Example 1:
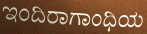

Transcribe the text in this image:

ಇಂದಿರಾಗಾಂಧಿಯ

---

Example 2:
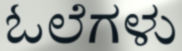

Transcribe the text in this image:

ಓಲೆಗಳು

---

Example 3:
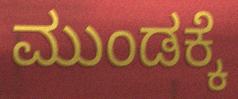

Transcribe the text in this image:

ಮುಂಡಕ್ಕೆ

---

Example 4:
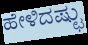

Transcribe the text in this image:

ಹೇಳಿದಷ್ಟು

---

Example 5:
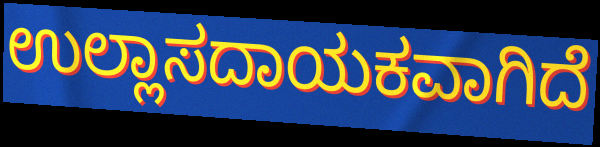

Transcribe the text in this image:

ಉಲ್ಲಾಸದಾಯಕವಾಗಿದೆ